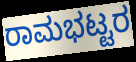
ರಾಮಭಟ್ಟರ